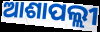
ଆଶାପଲ୍ଲୀ